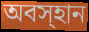
অবস্হান